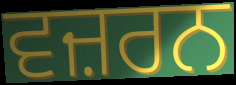
ਵਜ਼ਰਨ